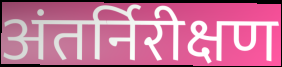
अंतर्निरीक्षण